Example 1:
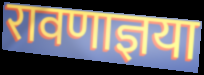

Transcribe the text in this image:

रावणाज्ञया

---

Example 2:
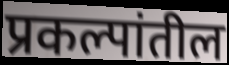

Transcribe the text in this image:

प्रकल्पांतील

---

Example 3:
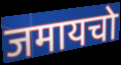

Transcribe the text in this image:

जमायचो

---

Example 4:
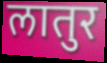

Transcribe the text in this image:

लातुर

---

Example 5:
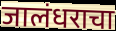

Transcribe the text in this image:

जालंधराचा